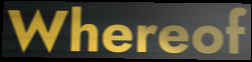
Whereof